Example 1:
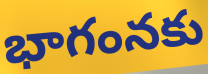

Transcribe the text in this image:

భాగంనకు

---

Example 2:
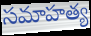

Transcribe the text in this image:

సమాహత్య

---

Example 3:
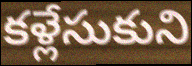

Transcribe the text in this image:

కళ్లేసుకుని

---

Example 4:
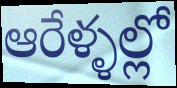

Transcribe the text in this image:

ఆరేళ్ళల్లో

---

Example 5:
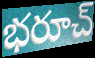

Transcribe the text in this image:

భరూచ్